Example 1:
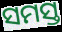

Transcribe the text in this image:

ସମସ୍ତ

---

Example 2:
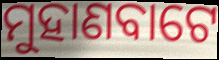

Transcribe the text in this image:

ମୁହାଣବାଟେ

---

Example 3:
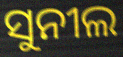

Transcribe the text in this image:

ସୁନୀଲ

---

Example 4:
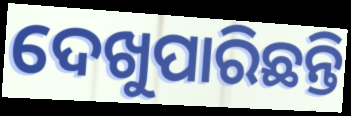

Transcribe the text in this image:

ଦେଖୁପାରିଛନ୍ତି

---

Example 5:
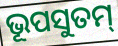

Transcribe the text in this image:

ଭୂପସୁତମ୍